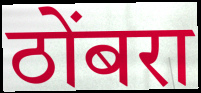
ठोंबरा